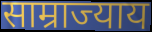
साम्राज्याय